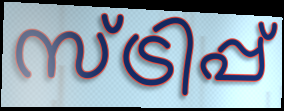
സ്ട്രിപ്പ്